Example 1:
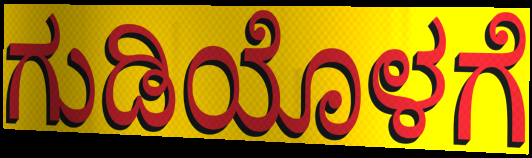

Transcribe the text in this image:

ಗುಡಿಯೊಳಗೆ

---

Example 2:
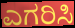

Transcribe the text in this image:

ಎಗರಿಸಿ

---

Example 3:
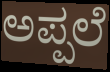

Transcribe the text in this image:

ಅಪ್ಪಲೆ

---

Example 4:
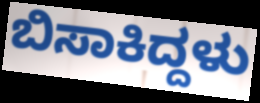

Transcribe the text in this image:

ಬಿಸಾಕಿದ್ದಳು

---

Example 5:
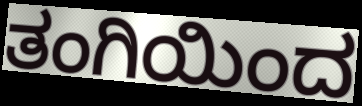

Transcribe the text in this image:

ತಂಗಿಯಿಂದ